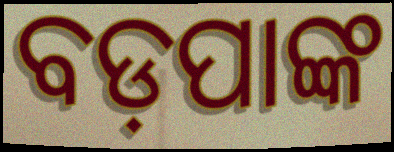
ବଡ଼ପାଙ୍କ